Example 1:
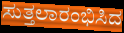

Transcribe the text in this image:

ಸುತ್ತಲಾರಂಭಿಸಿದ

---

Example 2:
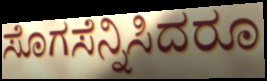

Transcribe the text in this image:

ಸೊಗಸೆನ್ನಿಸಿದರೂ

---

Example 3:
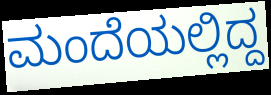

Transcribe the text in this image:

ಮಂದೆಯಲ್ಲಿದ್ದ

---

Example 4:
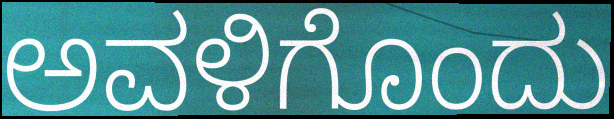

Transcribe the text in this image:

ಅವಳಿಗೊಂದು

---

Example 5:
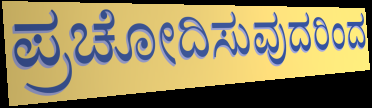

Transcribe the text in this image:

ಪ್ರಚೋದಿಸುವುದರಿಂದ